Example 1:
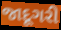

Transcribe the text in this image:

જાદૂગરી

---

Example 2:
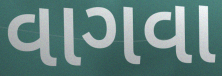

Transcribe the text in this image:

વાગવા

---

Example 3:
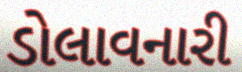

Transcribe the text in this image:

ડોલાવનારી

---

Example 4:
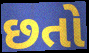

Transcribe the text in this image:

છતો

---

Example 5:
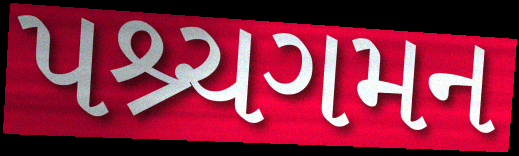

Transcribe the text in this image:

પશ્ર્ચગમન